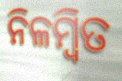
ନିଳମ୍ବିତ